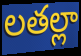
లతల్లా